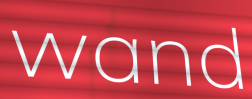
wand